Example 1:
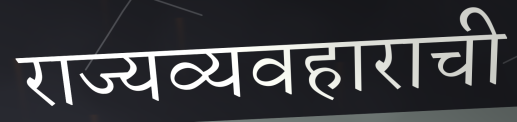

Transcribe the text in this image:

राज्यव्यवहाराची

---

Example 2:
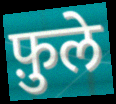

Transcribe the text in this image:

फ़ुले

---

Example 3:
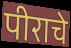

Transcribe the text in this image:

पीराचे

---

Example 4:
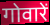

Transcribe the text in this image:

गोवारें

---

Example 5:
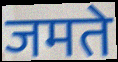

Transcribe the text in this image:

जमते